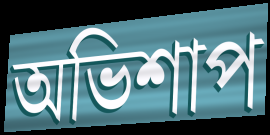
অভিশাপ